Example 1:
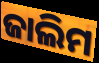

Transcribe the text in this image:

ଜାଲିମ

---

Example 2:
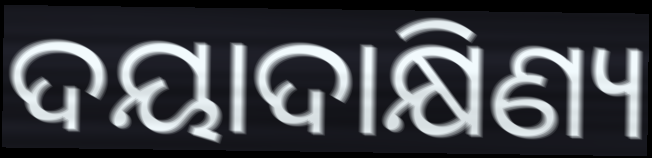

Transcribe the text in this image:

ଦୟାଦାକ୍ଷିଣ୍ୟ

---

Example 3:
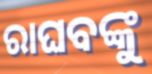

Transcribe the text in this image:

ରାଘବଙ୍କୁ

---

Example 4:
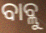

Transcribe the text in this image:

ବାବ୍ଲୁ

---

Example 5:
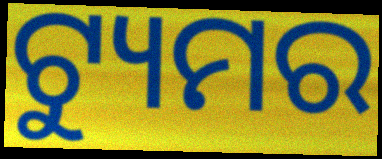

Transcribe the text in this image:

ଟ୍ୟୁମର